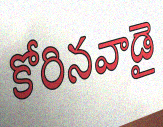
కోరినవాడై